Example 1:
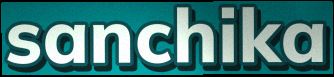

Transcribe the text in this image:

sanchika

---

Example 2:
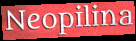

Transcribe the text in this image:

Neopilina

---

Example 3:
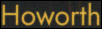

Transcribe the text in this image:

Howorth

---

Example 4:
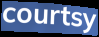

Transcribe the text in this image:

courtsy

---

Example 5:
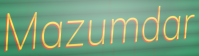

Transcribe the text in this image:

Mazumdar